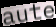
aute